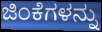
ಜಿಂಕೆಗಳನ್ನು